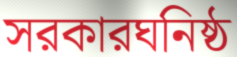
সরকারঘনিষ্ঠ